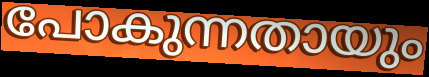
പോകുന്നതായും